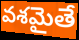
వశమైతే